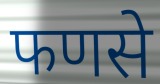
फणसे